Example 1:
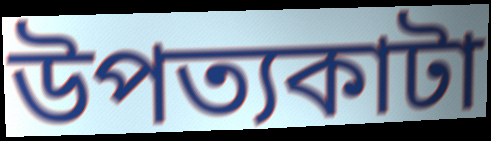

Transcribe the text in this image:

উপত্যকাটা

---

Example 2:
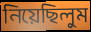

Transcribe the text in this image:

নিয়েছিলুম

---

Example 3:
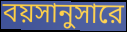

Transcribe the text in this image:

বয়সানুসারে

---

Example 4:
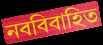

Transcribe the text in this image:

নববিবাহিত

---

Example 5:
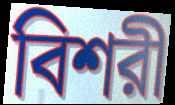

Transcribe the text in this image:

বিশরী